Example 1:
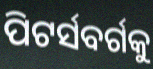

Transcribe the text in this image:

ପିଟର୍ସବର୍ଗକୁ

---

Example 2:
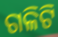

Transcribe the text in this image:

ଗଳିଟି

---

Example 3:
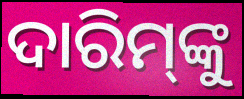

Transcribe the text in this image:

ଦାରିମ୍‍ଙ୍କୁ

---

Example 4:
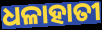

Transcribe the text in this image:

ଧଳାହାତୀ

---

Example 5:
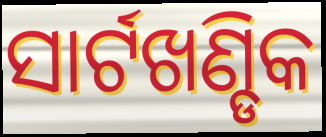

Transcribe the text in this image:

ସାର୍ଟଖଣ୍ଡିକ